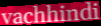
vachhindi